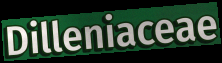
Dilleniaceae